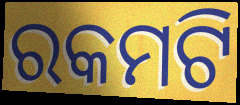
ରକମଟି